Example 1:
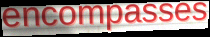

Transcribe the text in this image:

encompasses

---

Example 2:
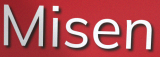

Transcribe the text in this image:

Misen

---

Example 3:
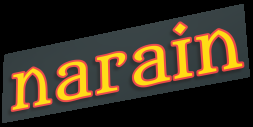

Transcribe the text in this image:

narain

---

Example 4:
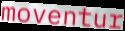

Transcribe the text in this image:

moventur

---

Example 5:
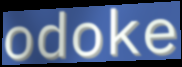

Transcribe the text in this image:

odoke